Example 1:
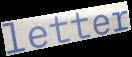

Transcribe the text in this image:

letter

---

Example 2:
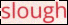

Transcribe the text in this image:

slough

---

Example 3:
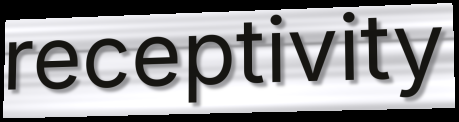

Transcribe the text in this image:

receptivity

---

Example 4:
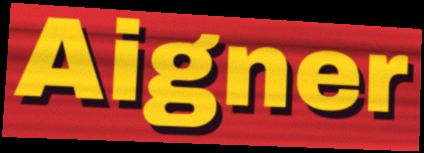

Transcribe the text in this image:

Aigner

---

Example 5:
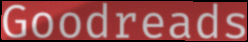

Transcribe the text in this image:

Goodreads